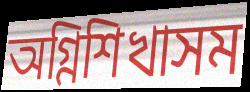
অগ্নিশিখাসম